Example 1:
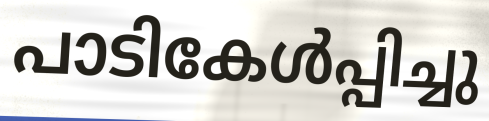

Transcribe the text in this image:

പാടികേൾപ്പിച്ചു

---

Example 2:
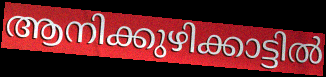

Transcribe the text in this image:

ആനിക്കുഴിക്കാട്ടിൽ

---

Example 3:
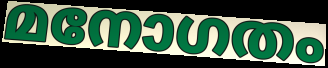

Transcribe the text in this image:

മനോഗതം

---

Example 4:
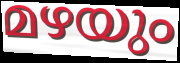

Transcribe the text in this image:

മഴയും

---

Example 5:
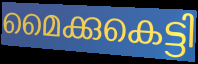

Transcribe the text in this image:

മൈക്കുകെട്ടി